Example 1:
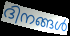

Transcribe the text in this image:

ദിനങ്ങൾ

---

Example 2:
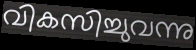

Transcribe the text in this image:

വികസിച്ചുവന്നു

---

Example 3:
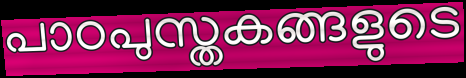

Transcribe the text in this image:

പാഠപുസ്തകങ്ങളുടെ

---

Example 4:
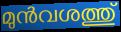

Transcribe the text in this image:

മുൻവശത്തു്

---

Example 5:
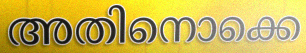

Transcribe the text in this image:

അതിനൊക്കെ